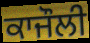
ਕਾਜੌਲੀ